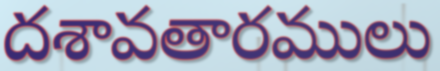
దశావతారములు